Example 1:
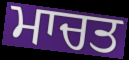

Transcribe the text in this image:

ਮਾਚਤ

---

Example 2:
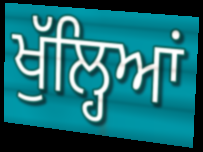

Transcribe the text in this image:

ਖੁੱਲ੍ਹਿਆਂ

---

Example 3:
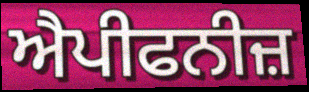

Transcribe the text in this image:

ਐਪੀਫਨੀਜ਼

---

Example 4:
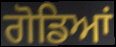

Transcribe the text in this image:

ਗੋਡਿਆਂ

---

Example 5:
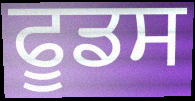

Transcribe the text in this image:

ਫੂਡਸ